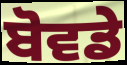
ਬੋਵਡੇ